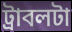
ট্রাবলটা